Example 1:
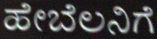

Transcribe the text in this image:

ಹೇಬೆಲನಿಗೆ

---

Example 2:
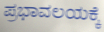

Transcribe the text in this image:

ಪ್ರಭಾವಲಯಕ್ಕೆ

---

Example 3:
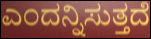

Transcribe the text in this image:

ಎಂದನ್ನಿಸುತ್ತದೆ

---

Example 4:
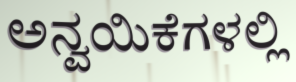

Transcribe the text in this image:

ಅನ್ವಯಿಕೆಗಳಲ್ಲಿ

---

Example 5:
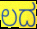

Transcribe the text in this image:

ಲದ